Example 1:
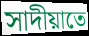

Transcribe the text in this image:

সাদীয়াতে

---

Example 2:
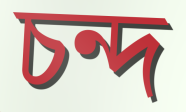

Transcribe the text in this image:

চন্দ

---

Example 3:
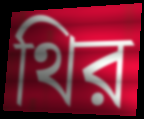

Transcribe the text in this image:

থির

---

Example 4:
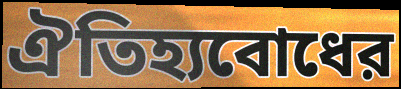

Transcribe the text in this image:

ঐতিহ্যবোধের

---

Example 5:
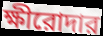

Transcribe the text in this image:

ক্ষীরোদার